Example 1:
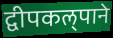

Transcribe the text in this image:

द्वीपकल्पाने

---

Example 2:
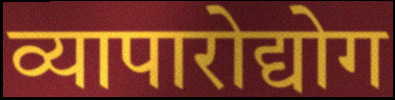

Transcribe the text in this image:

व्यापारोद्योग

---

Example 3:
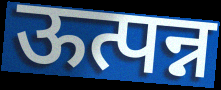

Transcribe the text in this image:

ऊत्पन्न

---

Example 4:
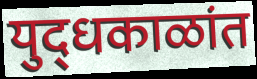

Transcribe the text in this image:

युद्धकाळांत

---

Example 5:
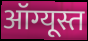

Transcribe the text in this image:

ऑग्यूस्त